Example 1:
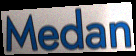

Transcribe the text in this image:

Medan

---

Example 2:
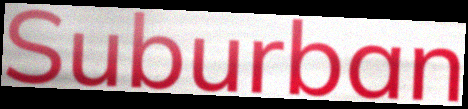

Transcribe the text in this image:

Suburban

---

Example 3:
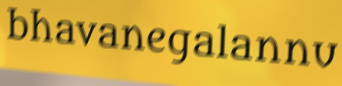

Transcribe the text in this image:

bhavanegalannu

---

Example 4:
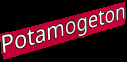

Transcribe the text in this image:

Potamogeton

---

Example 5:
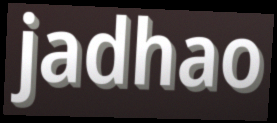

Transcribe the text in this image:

jadhao